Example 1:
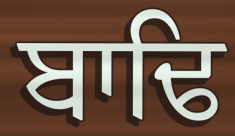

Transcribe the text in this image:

ਬਾਢਿ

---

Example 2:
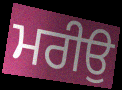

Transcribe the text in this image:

ਮਰੀਉ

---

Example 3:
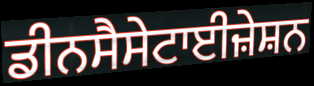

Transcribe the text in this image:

ਡੀਨਸੈਸੇਟਾਈਜ਼ੇਸ਼ਨ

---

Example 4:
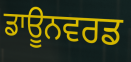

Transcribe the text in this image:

ਡਾਊਨਵਰਡ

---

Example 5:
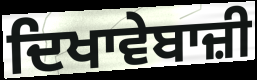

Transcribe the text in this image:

ਦਿਖਾਵੇਬਾਜ਼ੀ